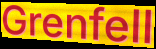
Grenfell